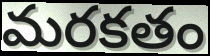
మరకతం